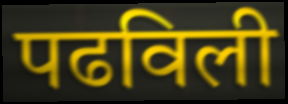
पढविली